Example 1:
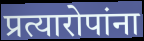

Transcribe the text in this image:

प्रत्यारोपांना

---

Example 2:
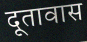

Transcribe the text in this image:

दूतावास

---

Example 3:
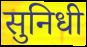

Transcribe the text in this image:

सुनिधी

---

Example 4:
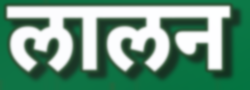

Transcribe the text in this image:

लालन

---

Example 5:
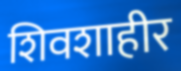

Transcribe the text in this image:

शिवशाहीर